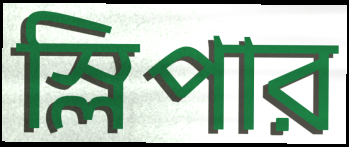
স্লিপার